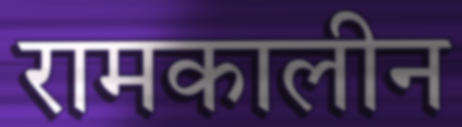
रामकालीन